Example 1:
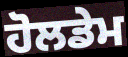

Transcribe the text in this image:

ਹੋਲਡੇਮ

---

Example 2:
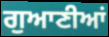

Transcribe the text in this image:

ਗੁਆਣੀਆਂ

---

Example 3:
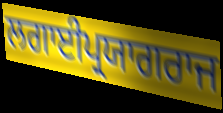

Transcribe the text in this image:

ਲਗਾਈਪ੍ਰਯਾਗਰਾਜ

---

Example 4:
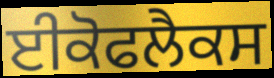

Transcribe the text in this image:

ਈਕੋਫਲੈਕਸ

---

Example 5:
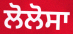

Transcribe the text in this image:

ਲੋਲੋਸਾ